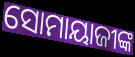
ସୋମାୟାଜୀଙ୍କ